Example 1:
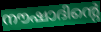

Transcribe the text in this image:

നൗഷാദിന്റെ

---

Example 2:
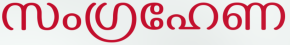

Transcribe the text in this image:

സംഗ്രഹേണ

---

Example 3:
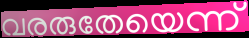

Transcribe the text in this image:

വരരുതേയെന്ന്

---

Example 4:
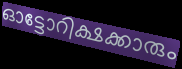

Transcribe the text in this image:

ഓട്ടോറിക്ഷക്കാരും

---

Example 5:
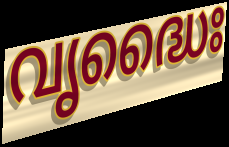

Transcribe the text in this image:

വൃദ്ധൈഃ